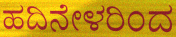
ಹದಿನೇಳರಿಂದ